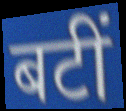
बटीं